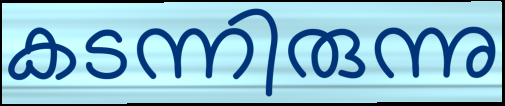
കടന്നിരുന്നു